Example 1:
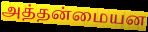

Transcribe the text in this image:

அத்தன்மையன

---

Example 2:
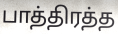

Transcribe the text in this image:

பாத்திரத்த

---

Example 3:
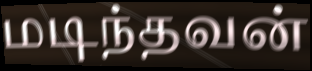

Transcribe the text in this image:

மடிந்தவன்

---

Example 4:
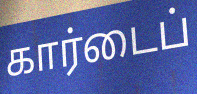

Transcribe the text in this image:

கார்டைப்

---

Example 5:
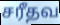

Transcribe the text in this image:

சரீதவ